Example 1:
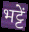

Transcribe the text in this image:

भट्टें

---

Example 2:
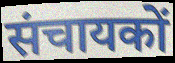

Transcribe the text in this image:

संचायकों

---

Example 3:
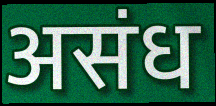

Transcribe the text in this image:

असंध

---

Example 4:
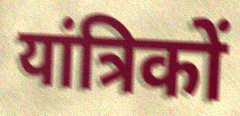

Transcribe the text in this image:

यांत्रिकों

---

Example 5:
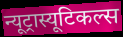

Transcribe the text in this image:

न्यूट्रास्यूटिकल्स